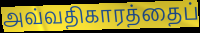
அவ்வதிகாரத்தைப்